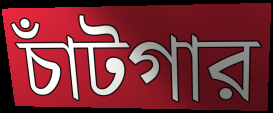
চাঁটগার